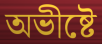
অভীষ্টে